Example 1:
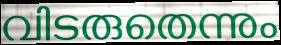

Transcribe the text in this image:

വിടരുതെന്നും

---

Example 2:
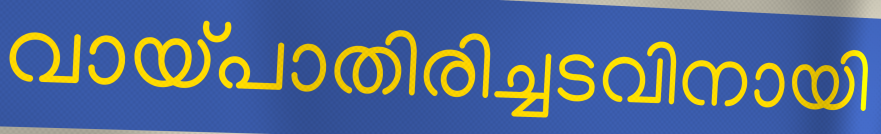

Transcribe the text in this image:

വായ്പാതിരിച്ചടവിനായി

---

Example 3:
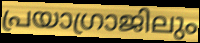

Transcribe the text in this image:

പ്രയാഗ്രാജിലും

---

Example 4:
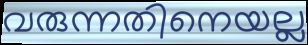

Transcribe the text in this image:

വരുന്നതിനെയല്ല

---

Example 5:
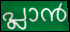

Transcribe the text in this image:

പ്ലാൻ